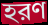
হরণ